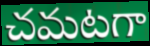
చమటగా